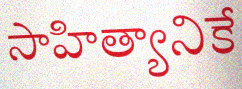
సాహిత్యానికే